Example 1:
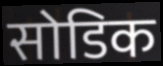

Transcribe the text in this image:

सोडिक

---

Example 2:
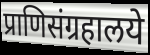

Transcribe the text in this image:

प्राणिसंग्रहालये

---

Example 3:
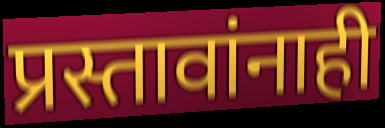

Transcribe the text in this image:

प्रस्तावांनाही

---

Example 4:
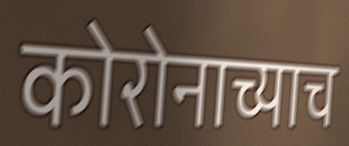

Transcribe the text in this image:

कोरोनाच्याच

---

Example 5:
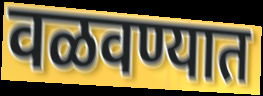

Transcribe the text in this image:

वळवण्यात